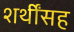
शर्थींसह